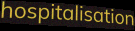
hospitalisation